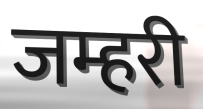
जम्हरी